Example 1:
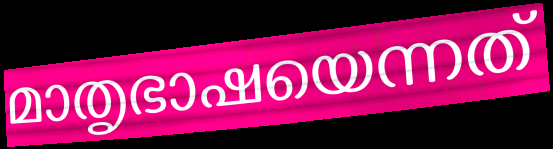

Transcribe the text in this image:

മാതൃഭാഷയെന്നത്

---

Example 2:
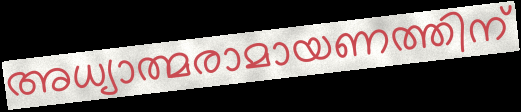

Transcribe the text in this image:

അധ്യാത്മരാമായണത്തിന്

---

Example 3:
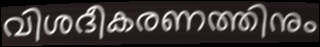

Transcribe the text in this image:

വിശദീകരണത്തിനും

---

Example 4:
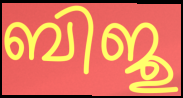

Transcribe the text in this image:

ബിജു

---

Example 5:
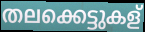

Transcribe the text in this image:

തലക്കെട്ടുകള്